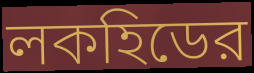
লকহিডের